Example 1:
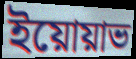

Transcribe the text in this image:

ইয়োয়াভ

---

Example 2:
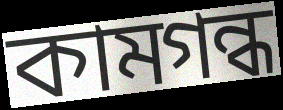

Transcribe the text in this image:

কামগন্ধ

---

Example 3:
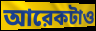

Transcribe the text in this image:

আরেকটাও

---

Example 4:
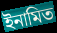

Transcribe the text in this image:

ইনামিত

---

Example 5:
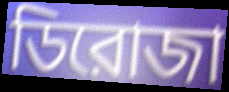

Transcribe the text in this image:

ডিরোজা